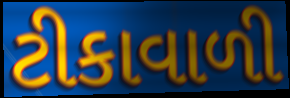
ટીકાવાળી